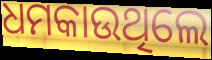
ଧମକାଉଥିଲେ